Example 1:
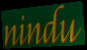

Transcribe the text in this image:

nindu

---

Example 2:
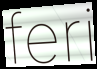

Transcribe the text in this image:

feri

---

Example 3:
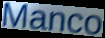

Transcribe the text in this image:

Manco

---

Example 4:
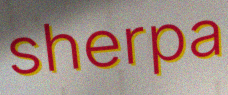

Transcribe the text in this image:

sherpa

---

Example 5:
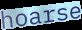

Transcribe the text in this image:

hoarse